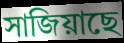
সাজিয়াছে